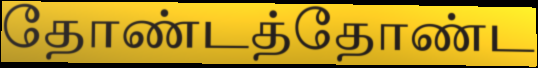
தோண்டத்தோண்ட